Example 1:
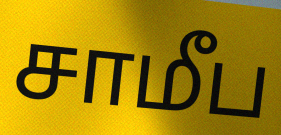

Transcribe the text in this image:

சாமீப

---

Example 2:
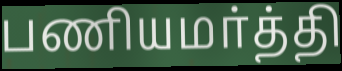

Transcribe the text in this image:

பணியமர்த்தி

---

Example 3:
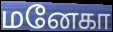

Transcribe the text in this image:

மனேகா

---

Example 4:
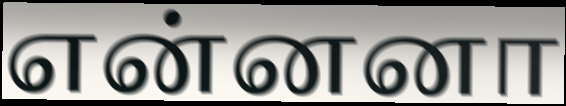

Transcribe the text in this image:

என்னனா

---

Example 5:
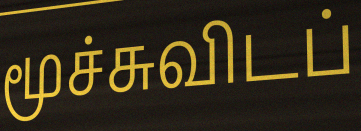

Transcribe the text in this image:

மூச்சுவிடப்